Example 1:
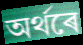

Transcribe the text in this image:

অৰ্থৰে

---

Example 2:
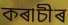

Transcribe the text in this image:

কৰাচীৰ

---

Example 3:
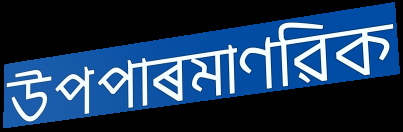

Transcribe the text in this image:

উপপাৰমাণৱিক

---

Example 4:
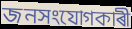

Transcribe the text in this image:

জনসংযোগকাৰী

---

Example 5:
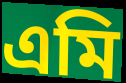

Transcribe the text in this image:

এমি